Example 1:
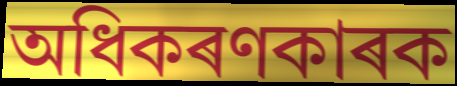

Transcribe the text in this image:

অধিকৰণকাৰক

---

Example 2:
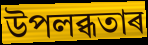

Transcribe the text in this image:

উপলব্ধতাৰ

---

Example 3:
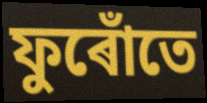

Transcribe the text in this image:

ফুৰোঁতে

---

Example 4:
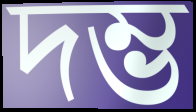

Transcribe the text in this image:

দম্ভ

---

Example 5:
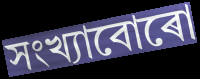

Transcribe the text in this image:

সংখ্যাবোৰো